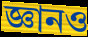
জ্ঞানও